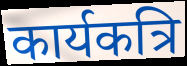
कार्यकत्रि